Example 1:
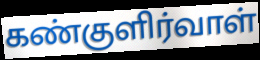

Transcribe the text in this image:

கண்குளிர்வாள்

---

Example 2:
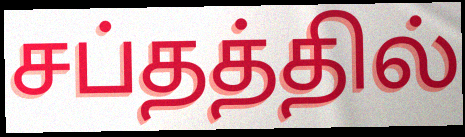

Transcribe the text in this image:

சப்தத்தில்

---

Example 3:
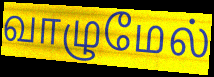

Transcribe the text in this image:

வாழுமேல்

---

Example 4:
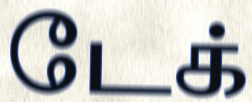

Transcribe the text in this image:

டேக்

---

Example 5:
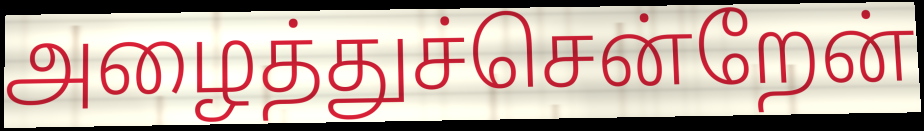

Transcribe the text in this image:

அழைத்துச்சென்றேன்